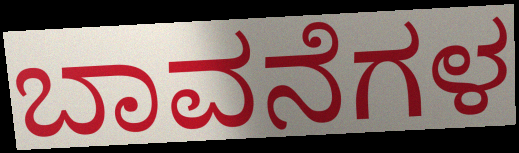
ಬಾವನೆಗಳ